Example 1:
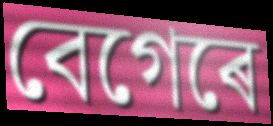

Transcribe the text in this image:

বেগেৰে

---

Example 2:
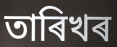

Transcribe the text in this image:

তাৰিখৰ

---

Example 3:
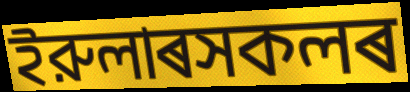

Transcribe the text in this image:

ইৰুলাৰসকলৰ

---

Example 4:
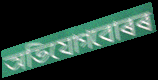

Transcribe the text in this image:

অভিযোগবোৰৰ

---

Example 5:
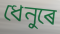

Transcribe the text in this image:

ধেনুৰে